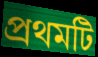
প্রথমটি